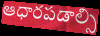
ఆధారపడాల్సి